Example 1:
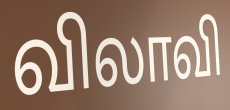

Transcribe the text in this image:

விலாவி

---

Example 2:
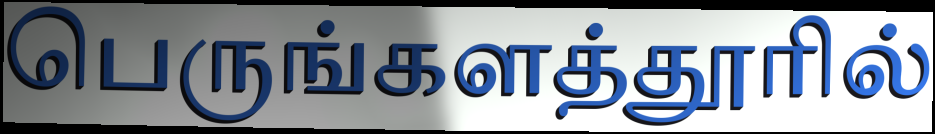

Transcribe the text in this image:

பெருங்களத்தூரில்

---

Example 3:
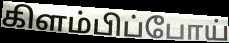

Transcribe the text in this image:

கிளம்பிப்போய்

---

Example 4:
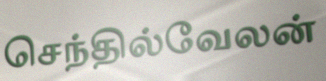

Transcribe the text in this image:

செந்தில்வேலன்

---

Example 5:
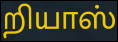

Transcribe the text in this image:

றியாஸ்